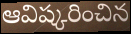
ఆవిష్కరించిన